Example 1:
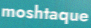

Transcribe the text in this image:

moshtaque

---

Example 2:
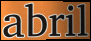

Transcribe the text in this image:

abril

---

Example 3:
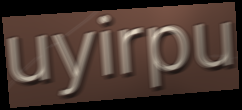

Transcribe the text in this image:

uyirpu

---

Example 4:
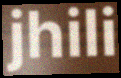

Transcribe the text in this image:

jhili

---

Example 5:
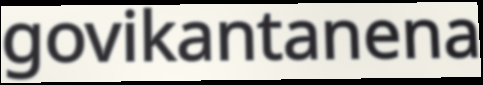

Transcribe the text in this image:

govikantanena